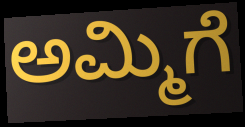
ಅಮ್ಮಿಗೆ